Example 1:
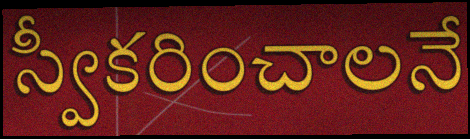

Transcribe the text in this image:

స్వీకరించాలనే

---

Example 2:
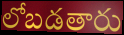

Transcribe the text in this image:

లోబడతారు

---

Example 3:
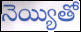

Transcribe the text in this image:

నెయ్యితో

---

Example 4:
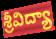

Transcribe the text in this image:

శ్రీవిద్యా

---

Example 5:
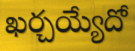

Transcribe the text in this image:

ఖర్చయ్యేదో